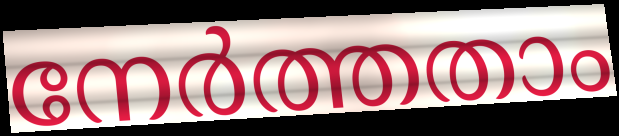
നേർത്തതാം